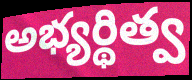
అభ్యర్థిత్వ